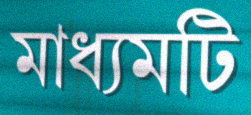
মাধ্যমটি